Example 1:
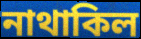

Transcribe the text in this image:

নাথাকিল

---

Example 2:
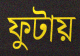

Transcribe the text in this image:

ফুটায়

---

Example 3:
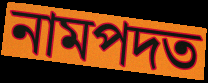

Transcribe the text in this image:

নামপদত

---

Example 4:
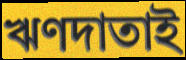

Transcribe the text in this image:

ঋণদাতাই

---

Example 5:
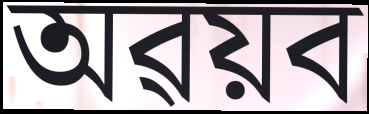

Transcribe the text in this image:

অৱয়ব